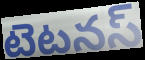
టెటనస్